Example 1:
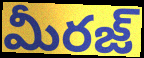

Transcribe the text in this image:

మీరజ్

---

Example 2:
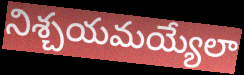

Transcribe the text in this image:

నిశ్చయమయ్యేలా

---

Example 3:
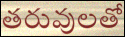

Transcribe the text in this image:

తరువులతో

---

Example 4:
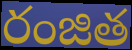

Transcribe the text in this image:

రంజిత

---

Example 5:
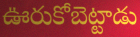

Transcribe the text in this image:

ఊరుకోబెట్టాడు